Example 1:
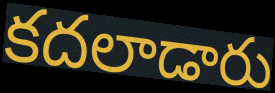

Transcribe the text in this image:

కదలాడారు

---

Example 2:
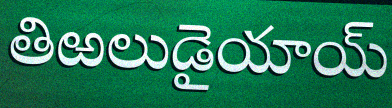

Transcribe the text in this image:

తిఱలుడైయాయ్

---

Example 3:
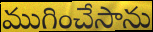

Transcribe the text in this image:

ముగించేసాను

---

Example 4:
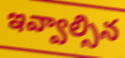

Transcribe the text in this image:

ఇవ్వాల్సిన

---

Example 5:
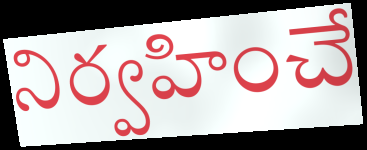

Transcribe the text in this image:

నిర్వహించే